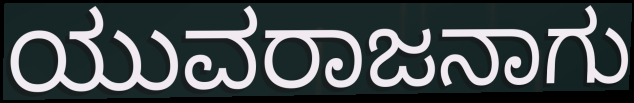
ಯುವರಾಜನಾಗು